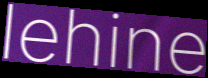
lehine